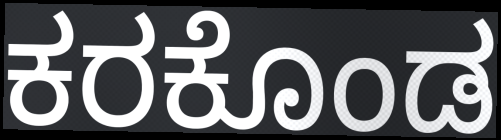
ಕರಕೊಂಡ